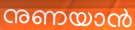
നുണയാൻ